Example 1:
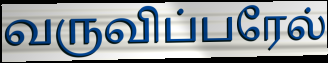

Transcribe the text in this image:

வருவிப்பரேல்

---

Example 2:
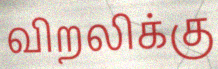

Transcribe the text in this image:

விறலிக்கு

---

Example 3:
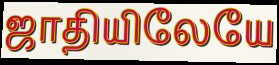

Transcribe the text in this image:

ஜாதியிலேயே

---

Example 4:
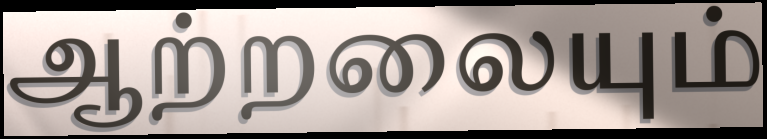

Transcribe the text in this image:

ஆற்றலையும்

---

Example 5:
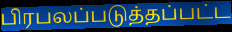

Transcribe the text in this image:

பிரபலப்படுத்தப்பட்ட